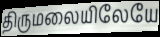
திருமலையிலேயே